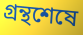
গ্রন্থশেষে